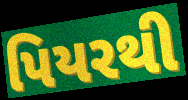
પિયરથી